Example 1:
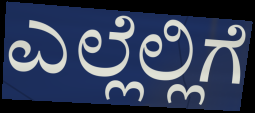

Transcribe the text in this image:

ಎಲ್ಲೆಲ್ಲಿಗೆ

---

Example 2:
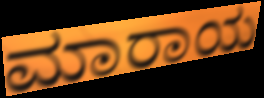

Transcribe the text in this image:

ಮಾರಾಯ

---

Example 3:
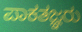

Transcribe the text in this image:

ಪಾಕತಜ್ಞರು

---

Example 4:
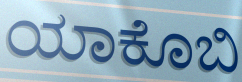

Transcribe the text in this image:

ಯಾಕೊಬಿ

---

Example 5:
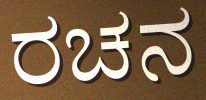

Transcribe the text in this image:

ರಚನ